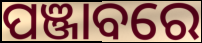
ପଞ୍ଜାବରେ